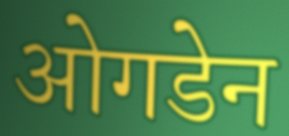
ओगडेन